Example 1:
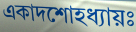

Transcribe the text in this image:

একাদশোহধ্যায়ঃ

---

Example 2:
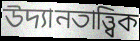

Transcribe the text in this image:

উদ্যানতাত্ত্বিক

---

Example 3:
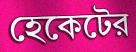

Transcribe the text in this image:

হেকেটের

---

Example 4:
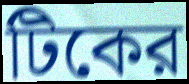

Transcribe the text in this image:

টিকের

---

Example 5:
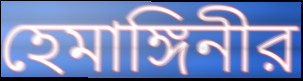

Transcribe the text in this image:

হেমাঙ্গিনীর